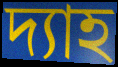
দ্যাহ